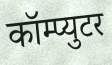
कॉम्प्युटर